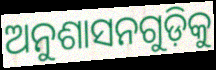
ଅନୁଶାସନଗୁଡ଼ିକୁ